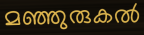
മഞ്ഞുരുകൽ